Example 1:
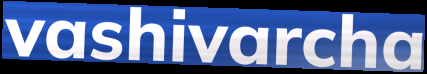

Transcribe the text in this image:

vashivarcha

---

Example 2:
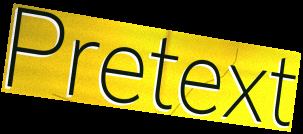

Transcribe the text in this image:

Pretext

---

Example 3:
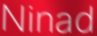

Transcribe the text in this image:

Ninad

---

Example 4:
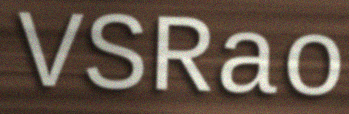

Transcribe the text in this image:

VSRao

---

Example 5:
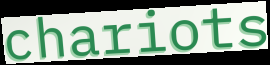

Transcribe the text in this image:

chariots